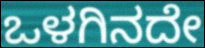
ಒಳಗಿನದೇ